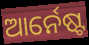
ଆର୍ନେଷ୍ଟ